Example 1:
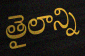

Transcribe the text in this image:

తైలాన్ని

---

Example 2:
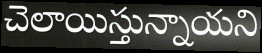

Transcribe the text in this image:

చెలాయిస్తున్నాయని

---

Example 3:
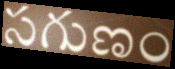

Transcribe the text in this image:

సగుణం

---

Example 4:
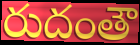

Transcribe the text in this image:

రుదంతౌ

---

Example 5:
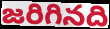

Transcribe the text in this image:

జరిగినది